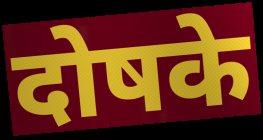
दोषके